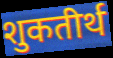
शुकतीर्थ